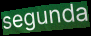
segunda